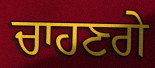
ਚਾਹਣਗੇ